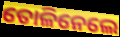
ତୋଳିନେଲେ